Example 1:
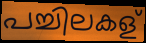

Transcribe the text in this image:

പച്ചിലകള്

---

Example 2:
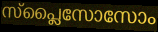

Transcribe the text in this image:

സ്പ്ലൈസോസോം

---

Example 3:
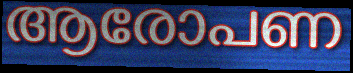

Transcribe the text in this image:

ആരോപണ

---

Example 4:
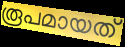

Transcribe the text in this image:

രൂപമായത്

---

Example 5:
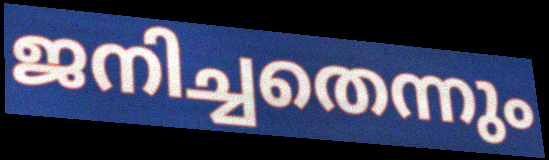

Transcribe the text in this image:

ജനിച്ചതെന്നും